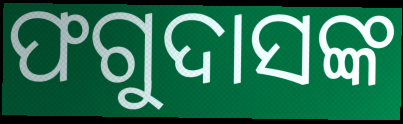
ଫଗୁଦାସଙ୍କ